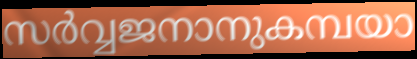
സർവ്വജനാനുകമ്പയാ